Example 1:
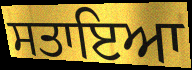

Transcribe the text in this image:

ਸਤਾਇਆ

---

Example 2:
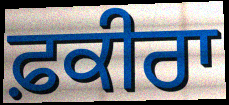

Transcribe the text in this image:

ਫ਼ਕੀਰਾ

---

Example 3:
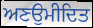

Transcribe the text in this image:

ਅਣਉਮੀਦਿਤ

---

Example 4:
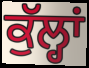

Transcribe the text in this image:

ਕੁੱਲ੍ਹਾਂ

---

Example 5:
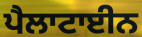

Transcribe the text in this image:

ਪੈਲਾਟਾਈਨ